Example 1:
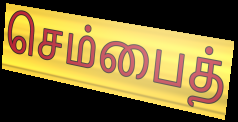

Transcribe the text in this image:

செம்பைத்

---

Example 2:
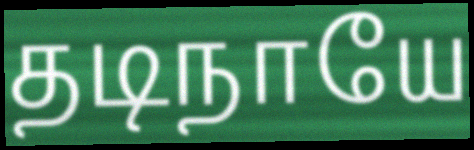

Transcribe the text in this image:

தடிநாயே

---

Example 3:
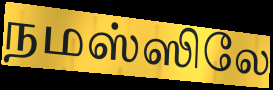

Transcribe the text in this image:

நமஸ்ஸிலே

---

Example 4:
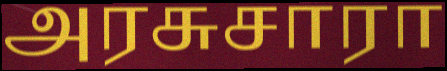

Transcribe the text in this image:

அரசுசாரா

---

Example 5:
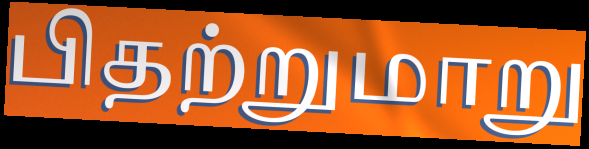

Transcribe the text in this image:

பிதற்றுமாறு